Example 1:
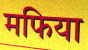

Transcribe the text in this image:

मफिया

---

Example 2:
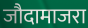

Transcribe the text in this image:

जौदामाजरा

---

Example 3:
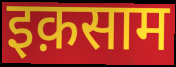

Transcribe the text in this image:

इक़साम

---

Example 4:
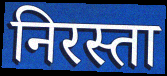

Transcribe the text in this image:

निरस्ता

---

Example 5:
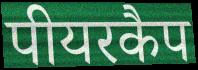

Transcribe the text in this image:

पीयरकैप